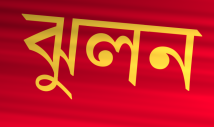
ঝুলন